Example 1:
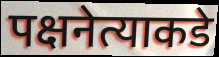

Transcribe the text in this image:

पक्षनेत्याकडे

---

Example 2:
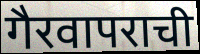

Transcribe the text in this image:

गैरवापराची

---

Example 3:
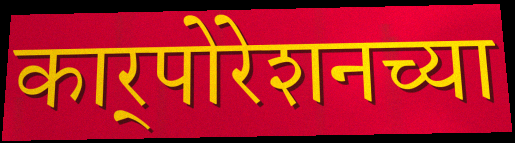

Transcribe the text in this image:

कार्पोरेशनच्या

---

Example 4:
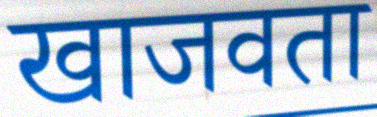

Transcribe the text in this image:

खाजवता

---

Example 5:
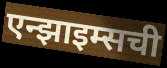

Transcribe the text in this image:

एन्झाइम्सची